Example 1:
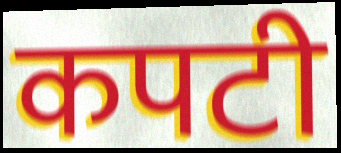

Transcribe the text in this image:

कपटी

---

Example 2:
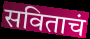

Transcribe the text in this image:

सविताचं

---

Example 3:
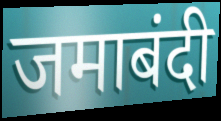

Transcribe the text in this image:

जमाबंदी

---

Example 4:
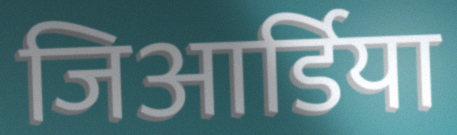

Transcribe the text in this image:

जिआर्डिया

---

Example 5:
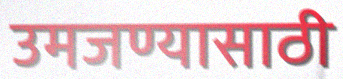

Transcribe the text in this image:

उमजण्यासाठी